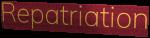
Repatriation